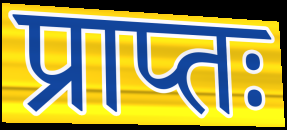
प्राप्तः